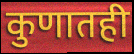
कुणातही